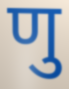
णु